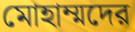
মোহাম্মদের